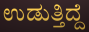
ಉಡುತ್ತಿದ್ದೆ